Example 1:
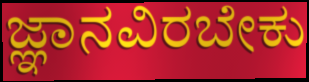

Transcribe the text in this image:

ಜ್ಞಾನವಿರಬೇಕು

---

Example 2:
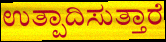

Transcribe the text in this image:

ಉತ್ಪಾದಿಸುತ್ತಾರೆ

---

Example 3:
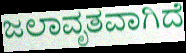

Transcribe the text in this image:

ಜಲಾವೃತವಾಗಿದೆ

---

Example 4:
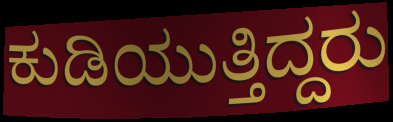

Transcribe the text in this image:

ಕುಡಿಯುತ್ತಿದ್ದರು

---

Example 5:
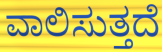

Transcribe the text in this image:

ವಾಲಿಸುತ್ತದೆ